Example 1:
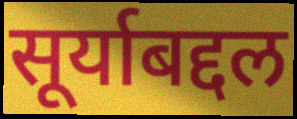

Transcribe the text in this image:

सूर्याबद्दल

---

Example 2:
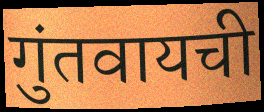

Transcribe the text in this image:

गुंतवायची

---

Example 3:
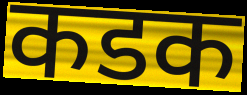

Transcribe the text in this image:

कडक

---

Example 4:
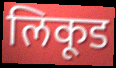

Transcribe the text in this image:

लिकूड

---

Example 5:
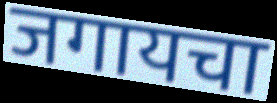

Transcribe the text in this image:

जगायचा